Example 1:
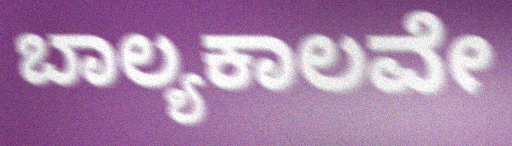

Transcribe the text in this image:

ಬಾಲ್ಯಕಾಲವೇ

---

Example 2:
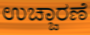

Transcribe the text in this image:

ಉಚ್ಚಾರಣೆ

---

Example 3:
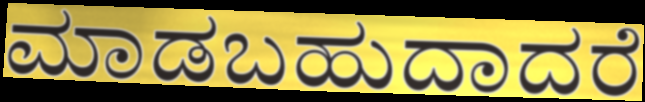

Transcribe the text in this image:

ಮಾಡಬಹುದಾದರೆ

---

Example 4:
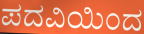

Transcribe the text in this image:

ಪದವಿಯಿಂದ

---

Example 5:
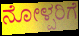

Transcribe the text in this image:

ನೋಳ್ಪರಿಗೆ